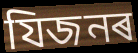
যিজনৰ